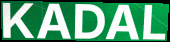
KADAL